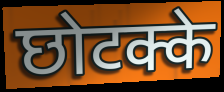
छोटक्के